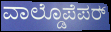
ವಾಲ್ಡೊಪೆಪರ್‍